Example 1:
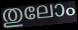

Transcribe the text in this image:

തുലോം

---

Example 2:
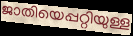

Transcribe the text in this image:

ജാതിയെപ്പറ്റിയുള്ള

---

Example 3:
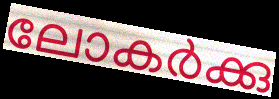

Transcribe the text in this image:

ലോകർക്കു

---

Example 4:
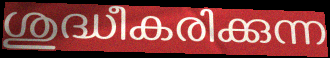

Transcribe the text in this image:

ശുദ്ധീകരിക്കുന്ന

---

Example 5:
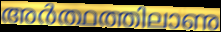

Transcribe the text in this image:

അർത്ഥത്തിലാണു